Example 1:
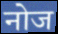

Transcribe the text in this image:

नोज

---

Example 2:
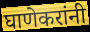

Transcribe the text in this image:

घाणेकरांनी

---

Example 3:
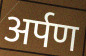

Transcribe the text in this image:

अर्पण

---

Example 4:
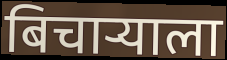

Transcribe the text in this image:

बिचार्‍याला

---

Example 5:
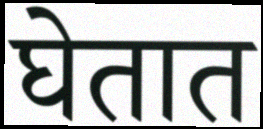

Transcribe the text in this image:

घेतात